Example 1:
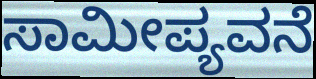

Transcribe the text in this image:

ಸಾಮೀಪ್ಯವನೆ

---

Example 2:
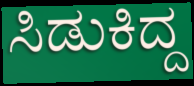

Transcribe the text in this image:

ಸಿಡುಕಿದ್ದ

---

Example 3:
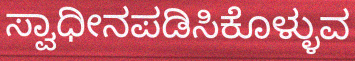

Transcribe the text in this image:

ಸ್ವಾಧೀನಪಡಿಸಿಕೊಳ್ಳುವ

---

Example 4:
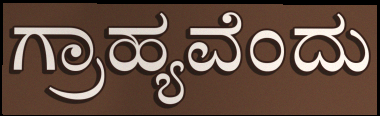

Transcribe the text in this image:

ಗ್ರಾಹ್ಯವೆಂದು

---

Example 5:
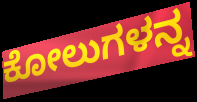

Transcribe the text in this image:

ಕೋಲುಗಳನ್ನ